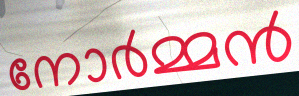
നോർമ്മൻ